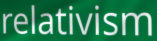
relativism